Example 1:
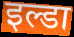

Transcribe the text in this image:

इल्डा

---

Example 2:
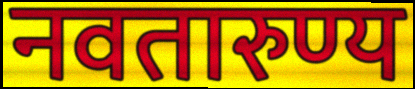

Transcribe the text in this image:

नवतारुण्य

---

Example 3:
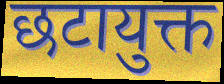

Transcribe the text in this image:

छटायुक्त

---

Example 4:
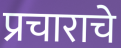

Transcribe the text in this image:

प्रचाराचे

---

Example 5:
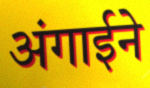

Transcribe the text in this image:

अंगाईने